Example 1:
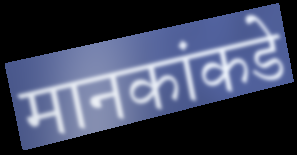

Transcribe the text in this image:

मानकांकडे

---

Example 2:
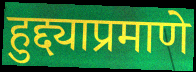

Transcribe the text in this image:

हुद्द्याप्रमाणे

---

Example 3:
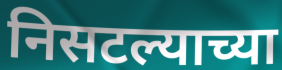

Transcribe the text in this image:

निसटल्याच्या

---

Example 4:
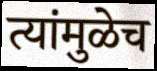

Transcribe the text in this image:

त्यांमुळेच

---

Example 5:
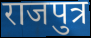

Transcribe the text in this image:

राजपुत्र